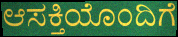
ಆಸಕ್ತಿಯೊಂದಿಗೆ